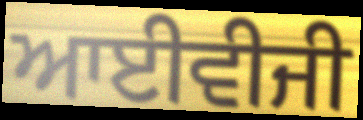
ਆਈਵੀਜੀ